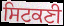
ਸਿਟਕਣੀ